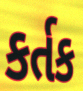
કર્તક